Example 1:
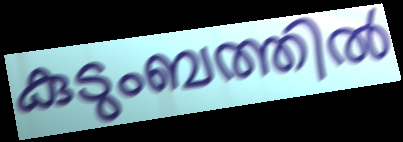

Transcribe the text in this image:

കുടുംബത്തിൽ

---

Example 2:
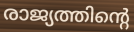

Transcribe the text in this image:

രാജ്യത്തിന്റെ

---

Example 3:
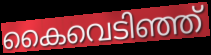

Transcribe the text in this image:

കൈവെടിഞ്ഞ്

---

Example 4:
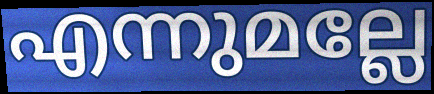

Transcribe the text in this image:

എന്നുമല്ലേ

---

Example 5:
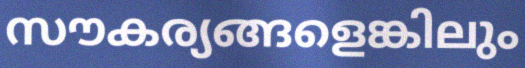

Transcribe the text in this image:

സൗകര്യങ്ങളെങ്കിലും